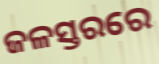
ଜଳସ୍ତରରେ